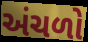
અંચળો